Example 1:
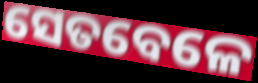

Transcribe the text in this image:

ସେତବେଳେ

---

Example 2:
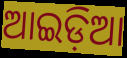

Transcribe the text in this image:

ଆଇଡ଼ିଆ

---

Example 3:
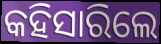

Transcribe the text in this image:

କହିସାରିଲେ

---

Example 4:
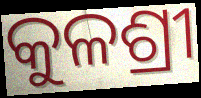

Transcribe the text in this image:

କୁଳଶ୍ରୀ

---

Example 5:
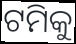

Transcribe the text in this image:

ଟମିକୁ